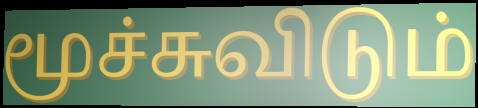
மூச்சுவிடும்